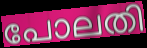
പോലതി